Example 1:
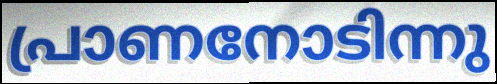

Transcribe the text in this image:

പ്രാണനോടിന്നു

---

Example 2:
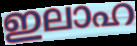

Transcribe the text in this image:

ഇലാഹ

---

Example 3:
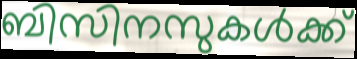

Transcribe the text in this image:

ബിസിനസുകൾക്ക്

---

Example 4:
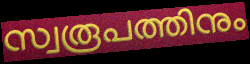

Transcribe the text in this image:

സ്വരൂപത്തിനും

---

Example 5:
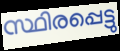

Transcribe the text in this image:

സ്ഥിരപ്പെട്ടു